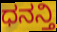
ಧನನ್ತಿ